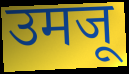
उमजू